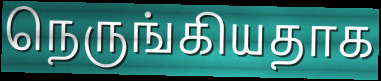
நெருங்கியதாக